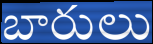
బారులు